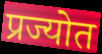
प्रज्योत